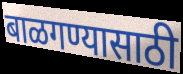
बाळगण्यासाठी